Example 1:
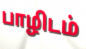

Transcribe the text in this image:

பாழிடம்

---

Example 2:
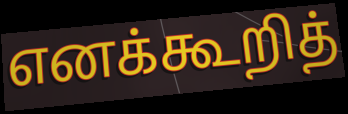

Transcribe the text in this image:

எனக்கூறித்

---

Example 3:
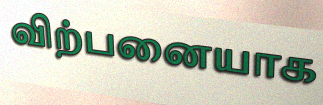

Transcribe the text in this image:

விற்பனையாக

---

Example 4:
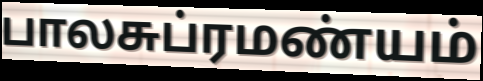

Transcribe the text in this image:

பாலசுப்ரமண்யம்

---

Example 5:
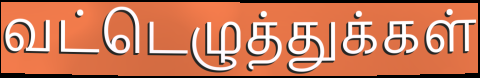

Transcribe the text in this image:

வட்டெழுத்துக்கள்